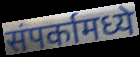
संपर्कामध्ये